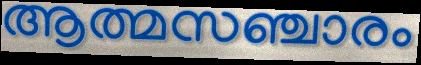
ആത്മസഞ്ചാരം